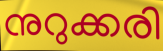
നുറുക്കരി